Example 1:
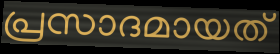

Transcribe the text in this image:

പ്രസാദമായത്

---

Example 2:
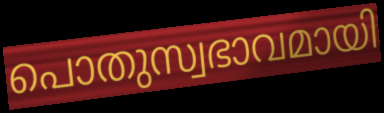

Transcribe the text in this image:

പൊതുസ്വഭാവമായി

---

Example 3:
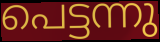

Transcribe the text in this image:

പെട്ടന്നു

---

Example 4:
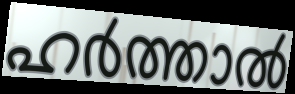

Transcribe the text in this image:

ഹർത്താൽ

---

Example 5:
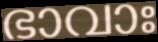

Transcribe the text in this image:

ഭാവാഃ